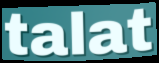
talat